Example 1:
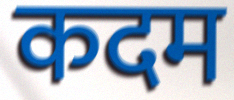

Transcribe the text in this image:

कदम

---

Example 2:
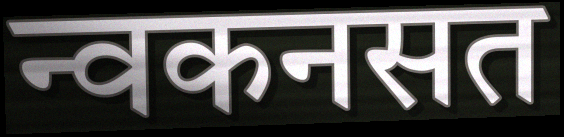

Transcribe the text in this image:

न्वकनसत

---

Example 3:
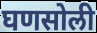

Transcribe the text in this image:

घणसोली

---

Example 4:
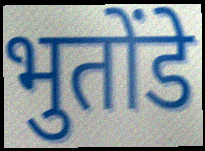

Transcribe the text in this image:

भुतोंडे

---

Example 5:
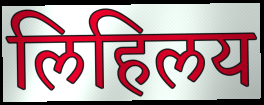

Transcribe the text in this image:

लिहिलय